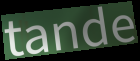
tande